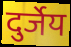
दुर्जेय